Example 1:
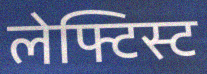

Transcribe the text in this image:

लेफ्टिस्ट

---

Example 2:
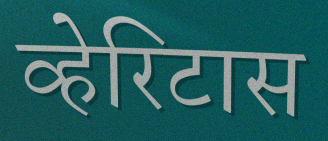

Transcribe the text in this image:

व्हेरिटास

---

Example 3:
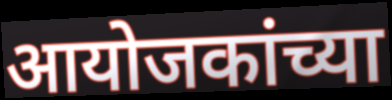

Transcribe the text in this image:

आयोजकांच्या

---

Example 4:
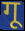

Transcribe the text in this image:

गू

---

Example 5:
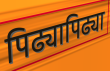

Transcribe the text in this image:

पिढ्यापिढ्या